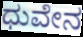
ಧುವೇನ